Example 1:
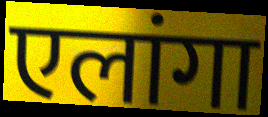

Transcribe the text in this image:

एलांगा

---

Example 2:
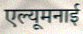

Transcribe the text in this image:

एल्यूमनाई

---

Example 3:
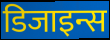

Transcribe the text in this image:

डिजाइन्स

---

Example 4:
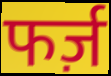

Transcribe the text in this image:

फर्ज़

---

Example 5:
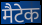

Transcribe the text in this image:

मैटेक